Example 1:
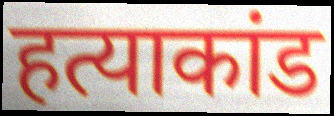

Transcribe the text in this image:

हत्याकांड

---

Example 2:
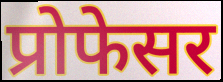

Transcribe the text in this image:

प्रोफेसर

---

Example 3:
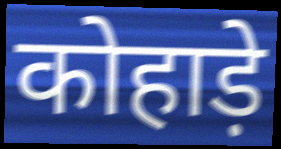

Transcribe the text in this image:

कोहाड़े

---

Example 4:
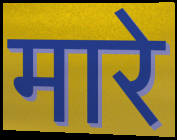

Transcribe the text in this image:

मारे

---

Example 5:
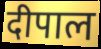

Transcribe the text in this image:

दीपाल